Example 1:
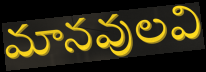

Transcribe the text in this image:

మానవులవి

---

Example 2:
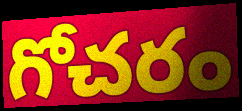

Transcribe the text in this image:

గోచరం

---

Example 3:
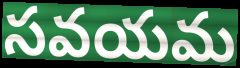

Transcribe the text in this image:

సవయమ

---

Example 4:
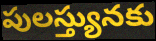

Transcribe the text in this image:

పులస్త్యునకు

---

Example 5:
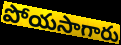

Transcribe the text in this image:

పోయసాగారు